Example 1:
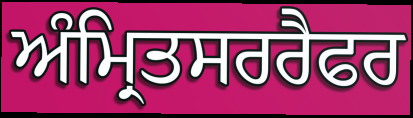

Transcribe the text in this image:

ਅੰਮ੍ਰਿਤਸਰਰੈਫਰ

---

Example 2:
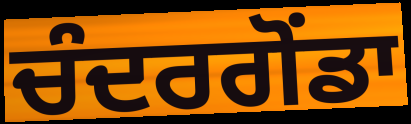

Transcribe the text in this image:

ਚੰਦਰਗੋਂਡਾ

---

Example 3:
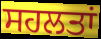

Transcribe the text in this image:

ਸਹਲਤਾਂ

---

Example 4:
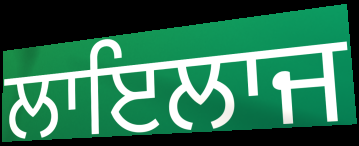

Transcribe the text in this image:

ਲਾਇਲਾਜ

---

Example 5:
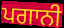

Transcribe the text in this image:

ਪਗਾਨੀ